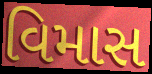
વિમાસ